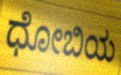
ಧೋಬಿಯ